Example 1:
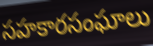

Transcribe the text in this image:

సహకారసంఘాలు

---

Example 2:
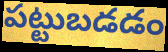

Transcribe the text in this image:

పట్టుబడడం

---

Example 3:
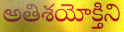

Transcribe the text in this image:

అతిశయోక్తిని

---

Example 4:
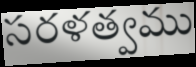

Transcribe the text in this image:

సరళత్వము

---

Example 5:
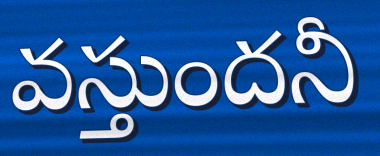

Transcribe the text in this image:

వస్తుందనీ